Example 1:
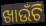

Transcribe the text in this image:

ଖାଉଁଚି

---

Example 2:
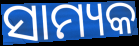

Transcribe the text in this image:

ସାମ୍ୟକ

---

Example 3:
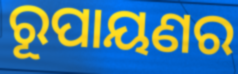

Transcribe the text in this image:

ରୂପାୟଣର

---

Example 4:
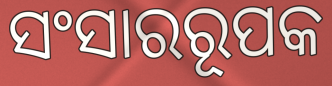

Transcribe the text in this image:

ସଂସାରରୂପକ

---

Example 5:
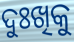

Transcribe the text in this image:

ଦୁଃଖିକୁ